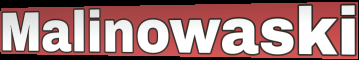
Malinowaski